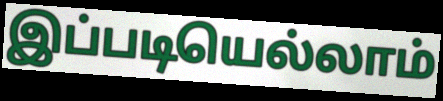
இப்படியெல்லாம்